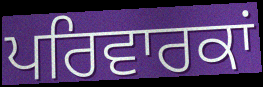
ਪਰਿਵਾਰਕਾਂ